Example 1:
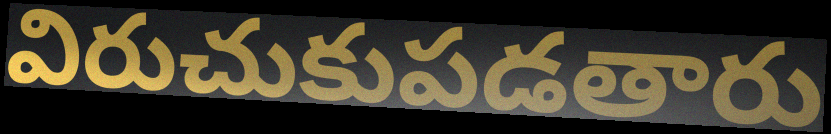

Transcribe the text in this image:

విరుచుకుపడతారు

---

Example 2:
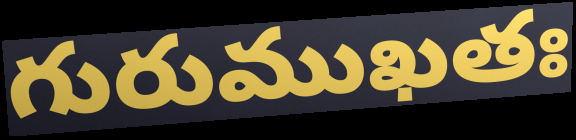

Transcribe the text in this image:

గురుముఖతః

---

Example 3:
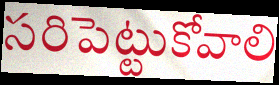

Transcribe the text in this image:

సరిపెట్టుకోవాలి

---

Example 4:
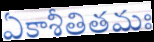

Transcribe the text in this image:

ఏకాశీతితమః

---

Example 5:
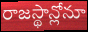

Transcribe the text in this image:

రాజస్థాన్లోనూ